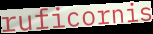
ruficornis